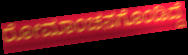
ರೋಮಾಂಚನಗೊಂಡಿದ್ದೆ